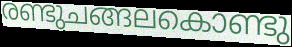
രണ്ടുചങ്ങലകൊണ്ടു